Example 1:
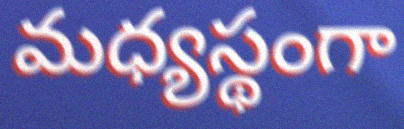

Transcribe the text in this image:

మధ్యస్థంగా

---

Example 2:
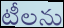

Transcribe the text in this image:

టీలను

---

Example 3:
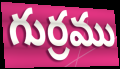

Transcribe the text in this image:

గుర్రము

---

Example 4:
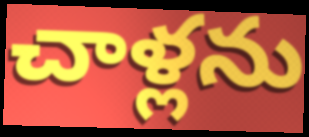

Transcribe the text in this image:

చాళ్లను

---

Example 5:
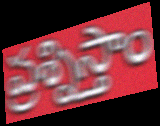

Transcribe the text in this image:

ప్రశ్నిస్తాం